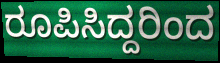
ರೂಪಿಸಿದ್ದರಿಂದ